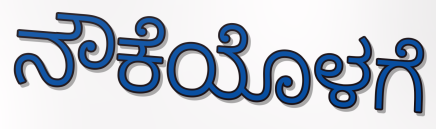
ನೌಕೆಯೊಳಗೆ